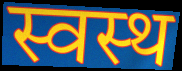
स्वस्थ